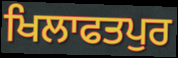
ਖਿਲਾਫਤਪੁਰ